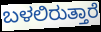
ಬಳಲಿರುತ್ತಾರೆ